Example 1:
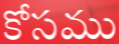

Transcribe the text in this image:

కోసము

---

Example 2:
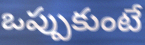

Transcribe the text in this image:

ఒప్పుకుంటే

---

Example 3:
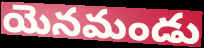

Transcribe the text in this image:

యెనమండు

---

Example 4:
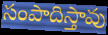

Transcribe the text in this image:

సంపాదిస్తావు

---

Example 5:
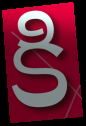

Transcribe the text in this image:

కి